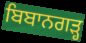
ਬਿਬਾਨਗੜ੍ਹ